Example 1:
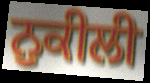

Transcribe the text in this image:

ਨੁਕੀਲੀ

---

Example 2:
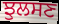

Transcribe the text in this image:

ਝੁਲਸਣ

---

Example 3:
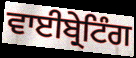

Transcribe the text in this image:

ਵਾਈਬ੍ਰੇਟਿੰਗ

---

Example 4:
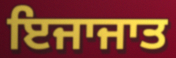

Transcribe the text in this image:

ਇਜਾਜਾਤ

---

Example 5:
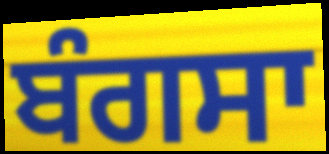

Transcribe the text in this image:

ਬੰਗਸਾ